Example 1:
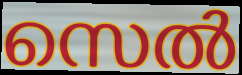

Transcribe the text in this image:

സെൽ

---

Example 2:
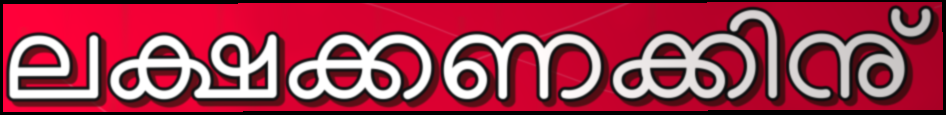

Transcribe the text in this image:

ലക്ഷക്കണക്കിനു്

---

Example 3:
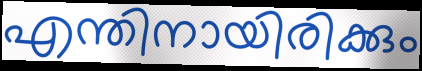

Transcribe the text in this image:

എന്തിനായിരിക്കും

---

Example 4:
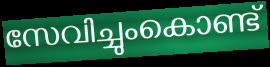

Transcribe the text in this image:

സേവിച്ചുംകൊണ്ട്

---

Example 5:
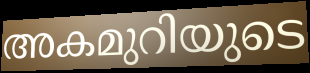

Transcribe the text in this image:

അകമുറിയുടെ